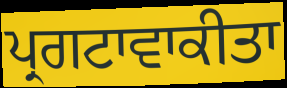
ਪ੍ਰਗਟਾਵਾਕੀਤਾ